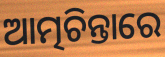
ଆତ୍ମଚିନ୍ତାରେ